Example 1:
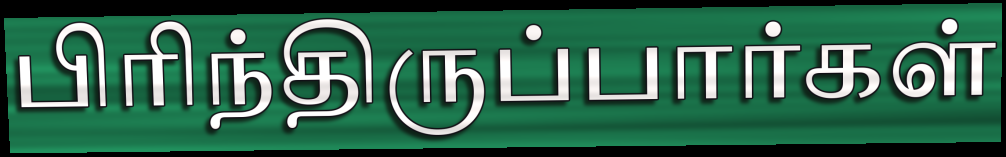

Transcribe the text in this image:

பிரிந்திருப்பார்கள்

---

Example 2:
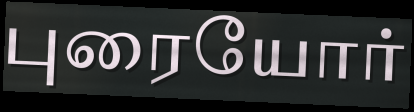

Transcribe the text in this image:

புரையோர்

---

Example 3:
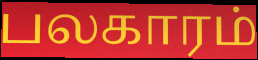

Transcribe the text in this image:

பலகாரம்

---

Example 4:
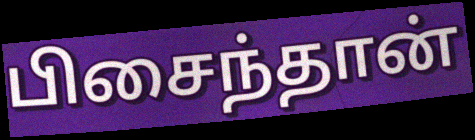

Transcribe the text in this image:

பிசைந்தான்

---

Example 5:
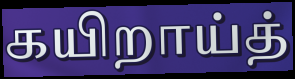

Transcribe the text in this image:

கயிறாய்த்